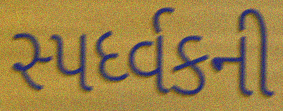
સ્પર્ધ્વકની